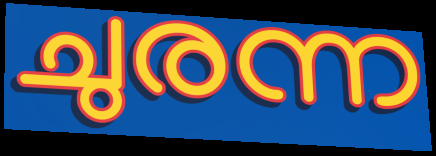
ചുരന്ന